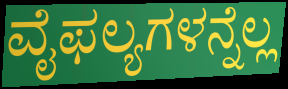
ವೈಫಲ್ಯಗಳನ್ನೆಲ್ಲ